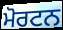
ਮੋਰਟਨ